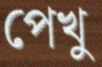
পেখু